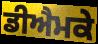
ਡੀਐਮਕੇ